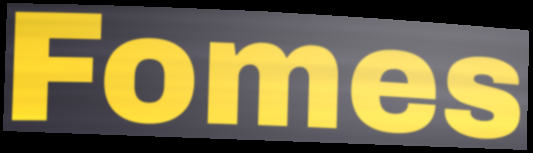
Fomes